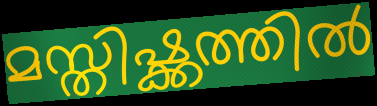
മസ്തിഷ്ക്കത്തിൽ